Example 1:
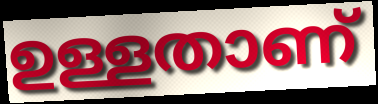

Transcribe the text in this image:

ഉള്ളതാണ്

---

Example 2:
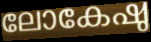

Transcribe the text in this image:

ലോകേഷു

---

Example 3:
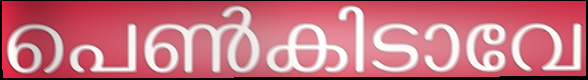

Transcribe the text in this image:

പെൺകിടാവേ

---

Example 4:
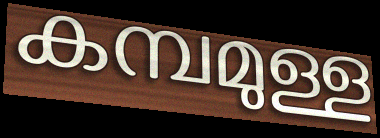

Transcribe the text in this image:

കമ്പമുള്ള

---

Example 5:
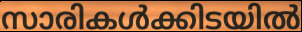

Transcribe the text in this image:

സാരികൾക്കിടയിൽ